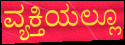
ವ್ಯಕ್ತಿಯಲ್ಲೂ